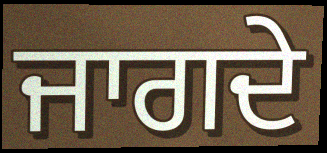
ਜਾਗਦੇ